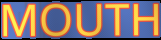
MOUTH